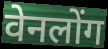
वेनलोंग